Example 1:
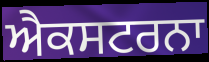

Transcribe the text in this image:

ਐਕਸਟਰਨਾ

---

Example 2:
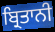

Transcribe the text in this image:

ਬ੍ਰਿਤਾਨੀ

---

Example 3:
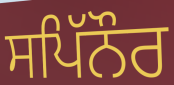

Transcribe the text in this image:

ਸਪਿੱਨੌਰ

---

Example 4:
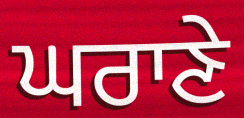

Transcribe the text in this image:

ਘਰਾਣੇ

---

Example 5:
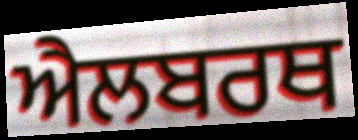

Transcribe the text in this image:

ਐਲਬਰਥ